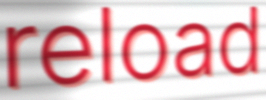
reload